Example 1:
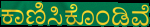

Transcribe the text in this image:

ಕಾಣಿಸಿಕೊಂಡಿವೆ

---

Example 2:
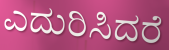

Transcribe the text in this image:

ಎದುರಿಸಿದರೆ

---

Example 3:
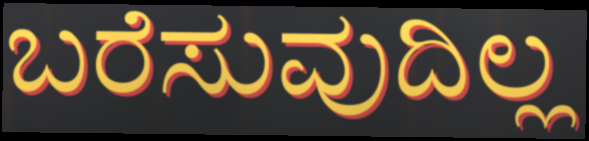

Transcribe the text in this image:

ಬರೆಸುವುದಿಲ್ಲ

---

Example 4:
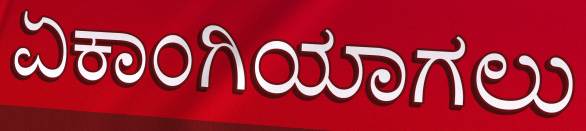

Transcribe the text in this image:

ಏಕಾಂಗಿಯಾಗಲು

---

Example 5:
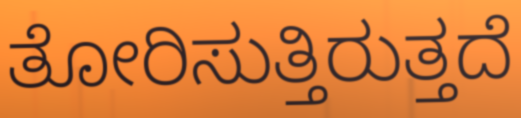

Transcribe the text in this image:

ತೋರಿಸುತ್ತಿರುತ್ತದೆ